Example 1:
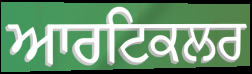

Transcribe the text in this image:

ਆਰਟਿਕਲਰ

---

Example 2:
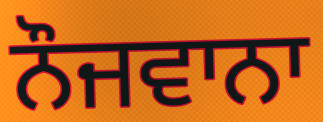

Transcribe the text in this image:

ਨੌਜਵਾਨਾ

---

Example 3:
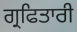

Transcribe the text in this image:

ਗ੍ਰਫਿਤਾਰੀ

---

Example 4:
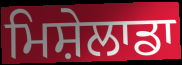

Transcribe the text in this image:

ਮਿਸ਼ੇਲਾਡਾ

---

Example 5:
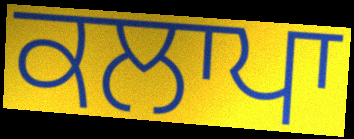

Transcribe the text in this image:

ਕਲਾਪਾ